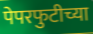
पेपरफुटीच्या